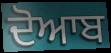
ਦੋਆਬ